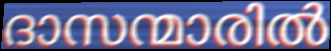
ദാസന്മാരിൽ